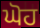
ਘੋਹ